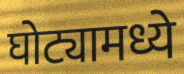
घोट्यामध्ये